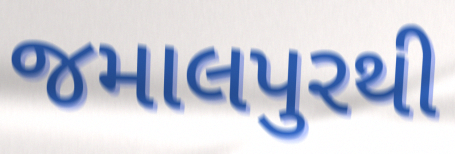
જમાલપુરથી